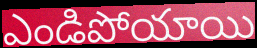
ఎండిపోయాయి